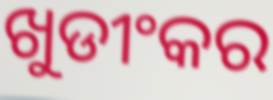
ଖୁଡୀଂକର